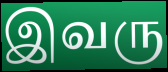
இவரு